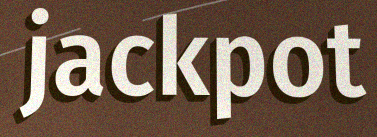
jackpot